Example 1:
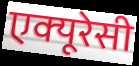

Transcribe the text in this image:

एक्यूरेसी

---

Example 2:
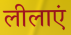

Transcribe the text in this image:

लीलाएं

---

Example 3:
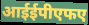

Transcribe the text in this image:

आईईपीएफए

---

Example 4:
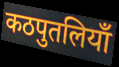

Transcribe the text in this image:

कठपुतलियाँ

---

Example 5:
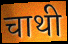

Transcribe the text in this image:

चाथी